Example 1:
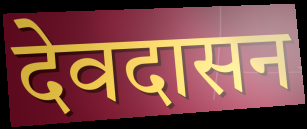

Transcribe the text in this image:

देवदासन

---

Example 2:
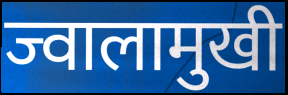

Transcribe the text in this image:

ज्‍वालामुखी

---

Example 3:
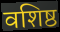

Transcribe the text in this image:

वशिष्ठ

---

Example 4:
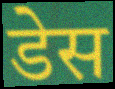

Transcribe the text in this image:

डेस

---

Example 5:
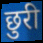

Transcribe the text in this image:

छुरी